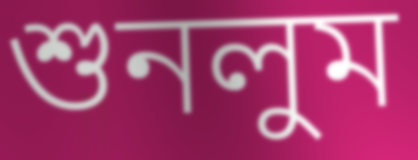
শুনলুম